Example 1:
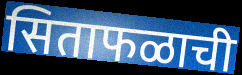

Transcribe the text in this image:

सिताफळाची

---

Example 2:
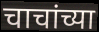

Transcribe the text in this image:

चाचांच्या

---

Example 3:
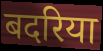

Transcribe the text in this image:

बदरिया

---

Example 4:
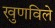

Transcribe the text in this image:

खुणविले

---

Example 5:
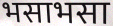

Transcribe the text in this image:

भसाभसा